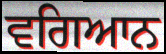
ਵਗਿਆਨ